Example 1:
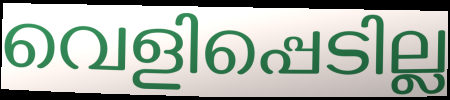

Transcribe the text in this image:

വെളിപ്പെടില്ല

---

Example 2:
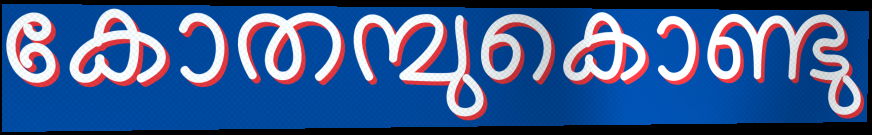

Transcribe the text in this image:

കോതമ്പുകൊണ്ടു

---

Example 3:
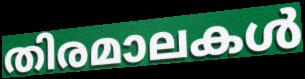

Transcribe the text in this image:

തിരമാലകൾ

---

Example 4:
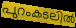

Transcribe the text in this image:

പുറംകടലിൽ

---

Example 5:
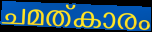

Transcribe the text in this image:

ചമത്കാരം